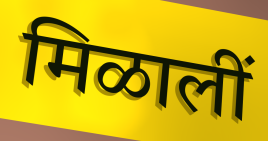
मिळालीं